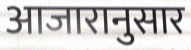
आजारानुसार